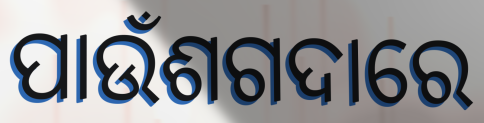
ପାଉଁଶଗଦାରେ